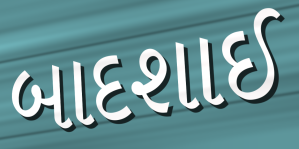
બાદશાઈ